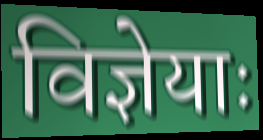
विज्ञेयाः